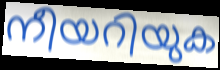
നീയറിയുക